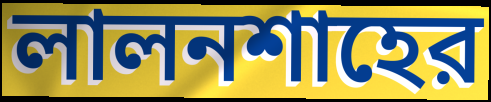
লালনশাহের